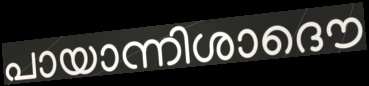
പായാന്നിശാദൌ